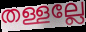
തള്ളല്ലേ